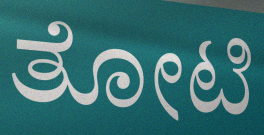
ತೋಟಿ